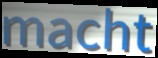
macht